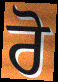
ਰੋ